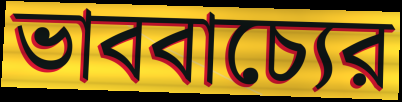
ভাববাচ্যের